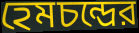
হেমচন্দ্রের